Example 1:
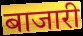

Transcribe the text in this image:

बाजारी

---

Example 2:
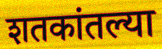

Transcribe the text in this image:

शतकांतल्या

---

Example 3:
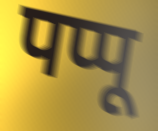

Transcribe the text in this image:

पप्पू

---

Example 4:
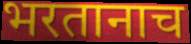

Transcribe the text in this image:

भरतानाच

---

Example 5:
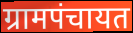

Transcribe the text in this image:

ग्रामपंचायत